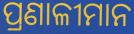
ପ୍ରଣାଳୀମାନ